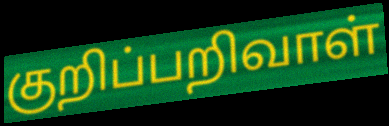
குறிப்பறிவாள்